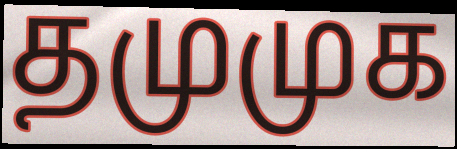
தமுமுக